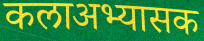
कलाअभ्यासक